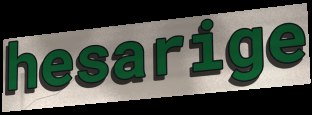
hesarige